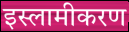
इस्लामीकरण